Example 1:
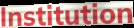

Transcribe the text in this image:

Institution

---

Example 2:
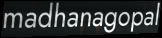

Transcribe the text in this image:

madhanagopal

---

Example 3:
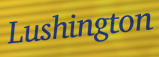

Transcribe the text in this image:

Lushington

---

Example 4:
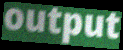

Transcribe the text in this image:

output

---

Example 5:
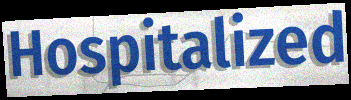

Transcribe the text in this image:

Hospitalized